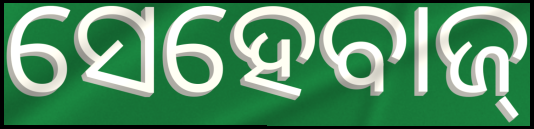
ସେହେବାଜ୍